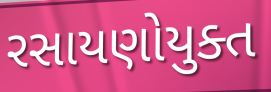
રસાયણોયુક્ત